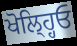
ਖੋਲ੍ਹ੍ਹਿਓ